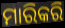
ମାରିକରି